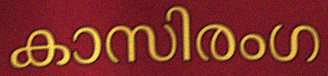
കാസിരംഗ